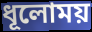
ধূলোময়